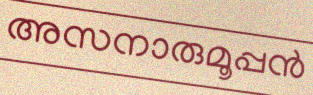
അസനാരുമൂപ്പൻ